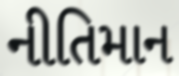
નીતિમાન